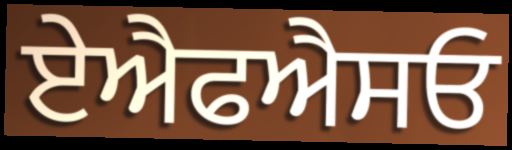
ਏਐਫਐਸਓ